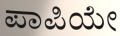
ಪಾಪಿಯೇ